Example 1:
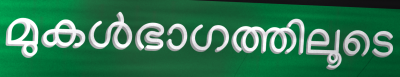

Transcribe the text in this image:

മുകൾഭാഗത്തിലൂടെ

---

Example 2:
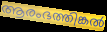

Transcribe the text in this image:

ആരംഭത്തിങ്കൽ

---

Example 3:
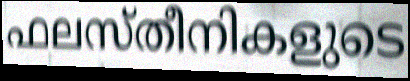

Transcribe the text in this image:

ഫലസ്തീനികളുടെ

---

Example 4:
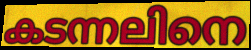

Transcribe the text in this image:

കടന്നലിനെ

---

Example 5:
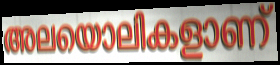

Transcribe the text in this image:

അലയൊലികളാണ്